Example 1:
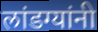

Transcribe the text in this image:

लांडग्यांनी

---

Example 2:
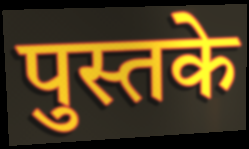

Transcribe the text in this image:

पुस्‍तके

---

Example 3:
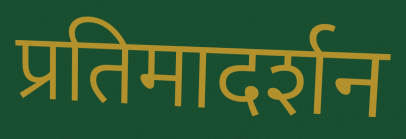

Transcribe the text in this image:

प्रतिमादर्शन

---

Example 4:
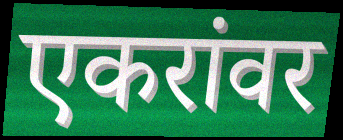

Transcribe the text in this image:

एकरांवर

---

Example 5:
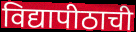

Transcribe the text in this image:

विद्यापीठाची